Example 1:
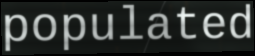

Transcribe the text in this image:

populated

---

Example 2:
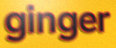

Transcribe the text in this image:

ginger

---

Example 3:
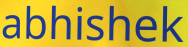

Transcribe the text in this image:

abhishek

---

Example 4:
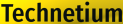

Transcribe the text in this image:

Technetium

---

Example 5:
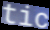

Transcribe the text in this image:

tic